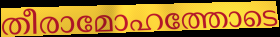
തീരാമോഹത്തോടെ